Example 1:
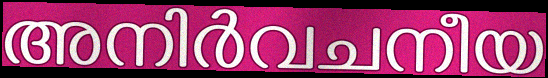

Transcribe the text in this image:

അനിർവചനീയ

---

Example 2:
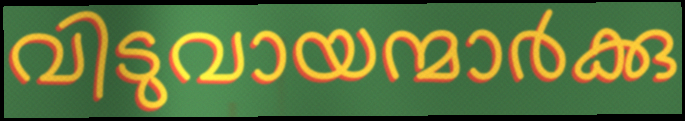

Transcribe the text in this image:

വിടുവായന്മാർക്കു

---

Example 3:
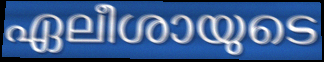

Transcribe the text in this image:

ഏലീശായുടെ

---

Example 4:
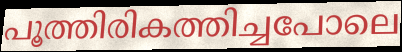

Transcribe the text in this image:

പൂത്തിരികത്തിച്ചപോലെ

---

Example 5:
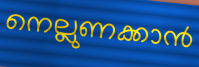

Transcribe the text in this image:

നെല്ലുണക്കാൻ